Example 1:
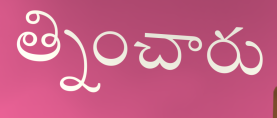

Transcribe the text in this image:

త్నించారు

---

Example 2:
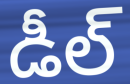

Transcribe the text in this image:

డీల్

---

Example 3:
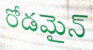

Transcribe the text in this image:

రోడమైన్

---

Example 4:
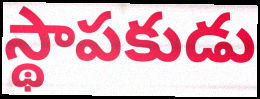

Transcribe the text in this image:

స్థాపకుడు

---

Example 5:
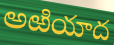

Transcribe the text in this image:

అఱియాద